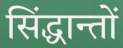
सिंद्धान्तों